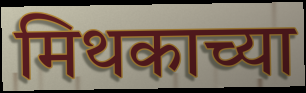
मिथकाच्या